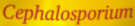
Cephalosporium